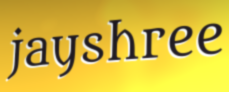
jayshree